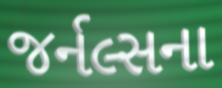
જર્નલ્સના